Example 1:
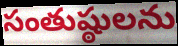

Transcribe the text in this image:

సంతుష్ఠులను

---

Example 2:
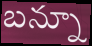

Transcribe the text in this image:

బన్నూ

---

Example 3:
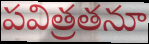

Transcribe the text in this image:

పవిత్రతనూ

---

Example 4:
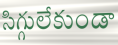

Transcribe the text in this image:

సిగ్గులేకుండా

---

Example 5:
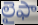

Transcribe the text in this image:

లైఫా